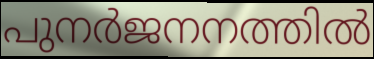
പുനർജനനത്തിൽ